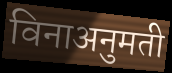
विनाअनुमती